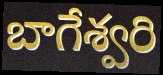
బాగేశ్వరి